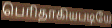
பெரிதாகியபடியே